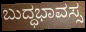
ಬುದ್ಧಭಾವಸ್ಸ